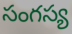
సంగస్య